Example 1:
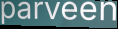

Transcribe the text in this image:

parveen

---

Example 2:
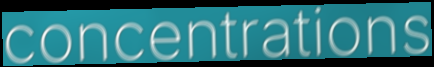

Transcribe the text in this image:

concentrations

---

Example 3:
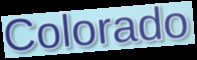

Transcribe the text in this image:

Colorado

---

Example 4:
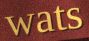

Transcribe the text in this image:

wats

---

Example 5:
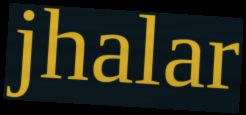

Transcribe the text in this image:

jhalar